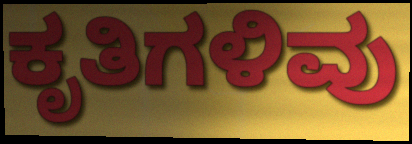
ಕೃತಿಗಳಿವು